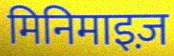
मिनिमाइज़